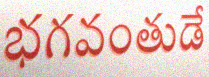
భగవంతుడే